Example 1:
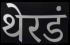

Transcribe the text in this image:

थेरडं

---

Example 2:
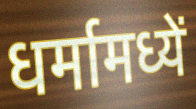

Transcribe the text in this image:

धर्मामध्यें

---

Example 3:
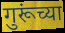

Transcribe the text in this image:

गुरूंच्या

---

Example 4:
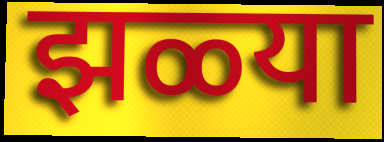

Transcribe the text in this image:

झळ्या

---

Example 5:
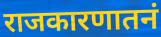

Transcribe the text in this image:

राजकारणातनं